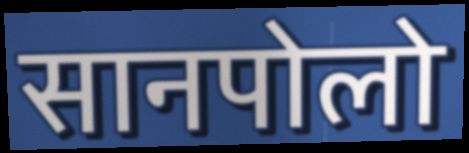
सानपोलो